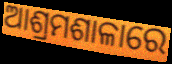
ଆଶ୍ରମଶାଳାରେ